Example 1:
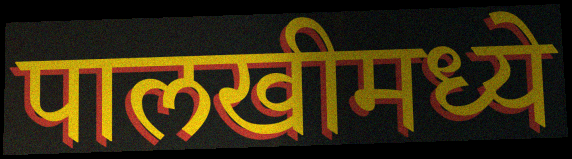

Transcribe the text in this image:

पालखीमध्ये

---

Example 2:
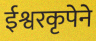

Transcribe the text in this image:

ईश्वरकृपेने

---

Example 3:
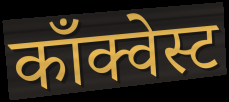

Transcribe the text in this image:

काँक्वेस्ट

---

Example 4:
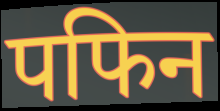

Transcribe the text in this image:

पफिन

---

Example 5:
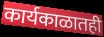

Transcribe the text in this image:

कार्यकाळातही